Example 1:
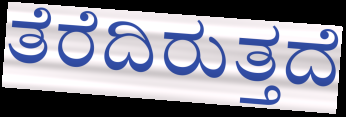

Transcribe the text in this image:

ತೆರೆದಿರುತ್ತದೆ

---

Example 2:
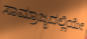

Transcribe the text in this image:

ಸಾಮ್ರಾಜ್ಯದಲ್ಲಿಯೇ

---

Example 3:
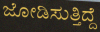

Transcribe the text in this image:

ಜೋಡಿಸುತ್ತಿದ್ದೆ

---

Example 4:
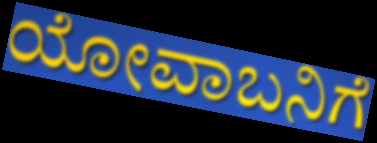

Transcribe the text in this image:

ಯೋವಾಬನಿಗೆ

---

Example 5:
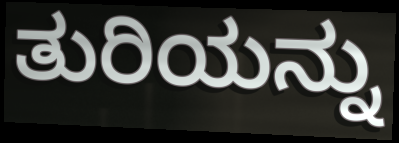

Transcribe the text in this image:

ತುರಿಯನ್ನು